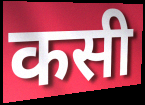
कसी